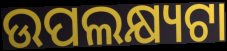
ଉପଲକ୍ଷ୍ୟଟା